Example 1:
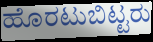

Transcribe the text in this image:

ಹೊರಟುಬಿಟ್ಟರು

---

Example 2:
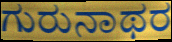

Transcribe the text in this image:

ಗುರುನಾಥರ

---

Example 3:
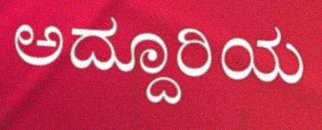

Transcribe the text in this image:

ಅದ್ದೂರಿಯ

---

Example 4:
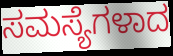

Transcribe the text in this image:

ಸಮಸ್ಯೆಗಳಾದ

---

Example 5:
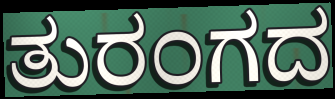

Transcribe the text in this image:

ತುರಂಗದ